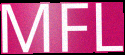
MFL